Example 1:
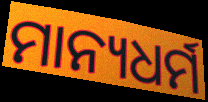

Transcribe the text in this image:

ମାନ୍ୟଧର୍ମ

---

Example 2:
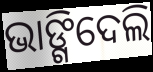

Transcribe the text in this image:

ଭାଙ୍ଗିଦେଲି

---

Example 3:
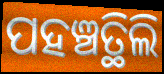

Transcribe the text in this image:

ପହଞ୍ଚତ୍ଥିଲି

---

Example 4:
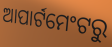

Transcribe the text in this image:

ଆପାର୍ଟମେଂଟରୁ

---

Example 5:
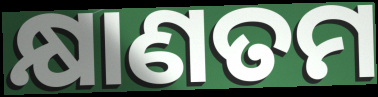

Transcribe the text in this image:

କ୍ଷାଣତମ